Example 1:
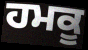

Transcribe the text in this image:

ਹਮਕੂ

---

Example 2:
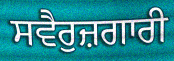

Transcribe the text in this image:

ਸਵੈਰੁਜ਼ਗਾਰੀ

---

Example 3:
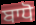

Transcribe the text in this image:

ਬਾਧੋ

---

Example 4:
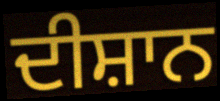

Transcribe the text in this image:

ਦੀਸ਼ਾਨ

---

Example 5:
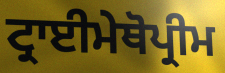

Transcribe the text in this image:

ਟ੍ਰਾਈਮੇਥੋਪ੍ਰੀਮ